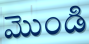
మొండి